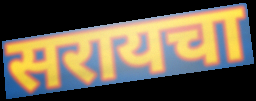
सरायचा